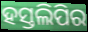
ହସ୍ତଲିପିର